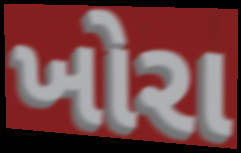
ખોરા